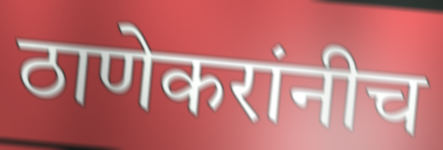
ठाणेकरांनीच